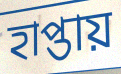
হাপ্তায়